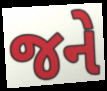
જને